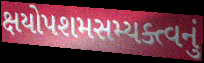
ક્ષયોપશમસમ્યક્ત્વનું